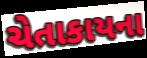
ચેતાકાયના